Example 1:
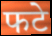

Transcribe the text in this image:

फटे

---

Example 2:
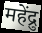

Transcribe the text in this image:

महेंद्रु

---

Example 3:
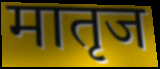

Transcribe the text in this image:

मातृज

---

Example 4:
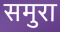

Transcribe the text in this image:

समुरा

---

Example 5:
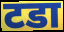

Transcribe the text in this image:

टडा